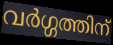
വർഗ്ഗത്തിന്